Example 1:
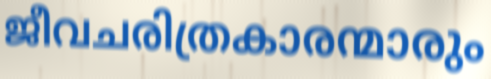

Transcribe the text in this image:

ജീവചരിത്രകാരന്മാരും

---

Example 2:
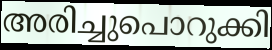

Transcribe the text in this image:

അരിച്ചുപൊറുക്കി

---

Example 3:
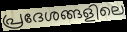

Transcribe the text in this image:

പ്രദേശങ്ങളിലെ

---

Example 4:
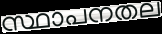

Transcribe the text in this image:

സ്ഥാപനതല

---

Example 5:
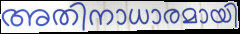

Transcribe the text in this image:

അതിനാധാരമായി